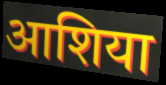
आशिया